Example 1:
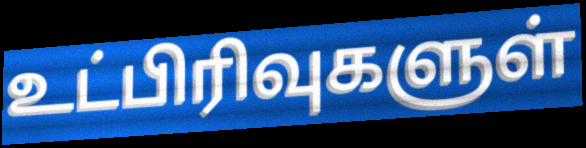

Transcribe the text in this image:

உட்பிரிவுகளுள்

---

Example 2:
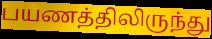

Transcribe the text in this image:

பயணத்திலிருந்து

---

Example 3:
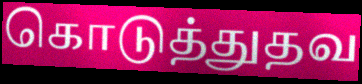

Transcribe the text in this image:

கொடுத்துதவ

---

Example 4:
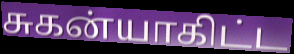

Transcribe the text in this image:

சுகன்யாகிட்ட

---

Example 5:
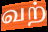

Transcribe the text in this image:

வற்